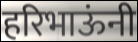
हरिभाऊंनी